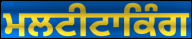
ਮਲਟੀਟਾਕਿੰਗ